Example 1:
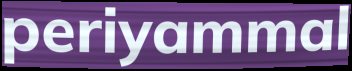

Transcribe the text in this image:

periyammal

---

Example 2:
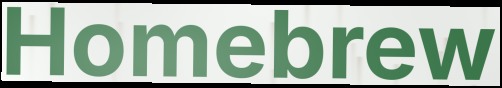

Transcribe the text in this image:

Homebrew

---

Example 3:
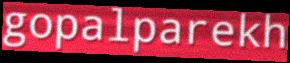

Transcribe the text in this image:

gopalparekh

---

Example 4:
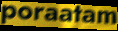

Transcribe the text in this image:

poraatam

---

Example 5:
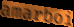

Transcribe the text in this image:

amarboi